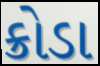
ક્રોડા